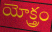
యోక్త్రం